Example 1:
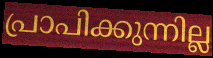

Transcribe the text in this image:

പ്രാപിക്കുന്നില്ല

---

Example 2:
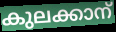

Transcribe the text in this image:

കുലക്കാന്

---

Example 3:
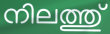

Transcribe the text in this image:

നിലത്തു്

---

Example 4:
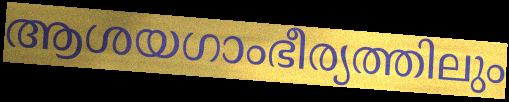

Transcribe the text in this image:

ആശയഗാംഭീര്യത്തിലും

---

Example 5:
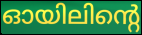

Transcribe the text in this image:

ഓയിലിന്റെ